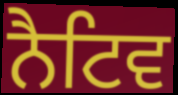
ਨੈਟਿਵ